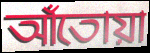
আঁতোয়া